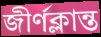
জীর্ণক্লান্ত